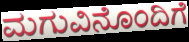
ಮಗುವಿನೊಂದಿಗೆ